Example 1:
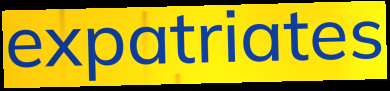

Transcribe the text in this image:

expatriates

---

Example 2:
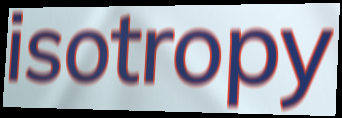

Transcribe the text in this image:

isotropy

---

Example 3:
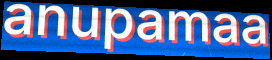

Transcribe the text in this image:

anupamaa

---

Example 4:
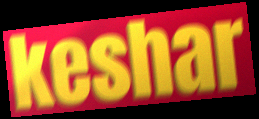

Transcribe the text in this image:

keshar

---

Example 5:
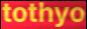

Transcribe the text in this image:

tothyo